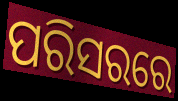
ପରିସରରେ